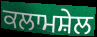
ਕਲਾਮਸ਼ੇਲ